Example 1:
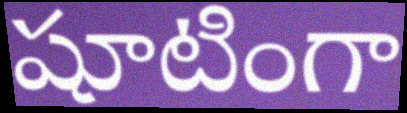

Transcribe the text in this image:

షూటింగా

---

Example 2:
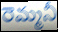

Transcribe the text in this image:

రెమ్మనీ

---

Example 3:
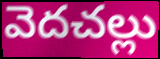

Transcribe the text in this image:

వెదచల్లు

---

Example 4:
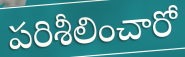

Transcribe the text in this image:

పరిశీలించారో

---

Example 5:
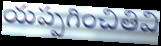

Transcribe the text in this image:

యప్పగించితివి